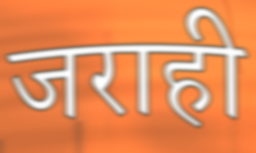
जराही